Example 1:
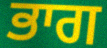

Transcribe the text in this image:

ਭਾਗ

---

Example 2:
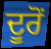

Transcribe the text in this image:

ਦੂਰੋਂ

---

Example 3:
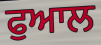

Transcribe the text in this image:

ਫੁਆਲ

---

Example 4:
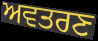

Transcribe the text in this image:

ਅਵਤਰਣ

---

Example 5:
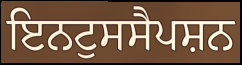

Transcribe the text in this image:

ਇਨਟੁਸਸੈਪਸ਼ਨ